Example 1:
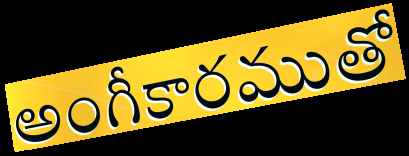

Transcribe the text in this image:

అంగీకారముతో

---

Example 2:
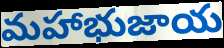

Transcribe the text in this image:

మహాభుజాయ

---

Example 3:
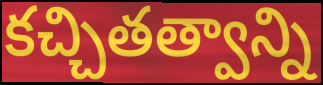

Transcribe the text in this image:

కచ్చితత్వాన్ని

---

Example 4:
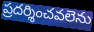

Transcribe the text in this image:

ప్రదర్శించవలెను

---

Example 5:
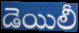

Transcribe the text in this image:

డెయిలీ